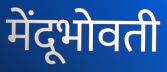
मेंदूभोवती